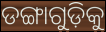
ଡଙ୍ଗାଗୁଡ଼ିକୁ